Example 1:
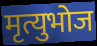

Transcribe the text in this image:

मृत्युभोज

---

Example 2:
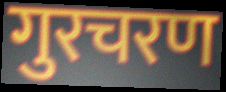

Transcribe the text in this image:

गुरचरण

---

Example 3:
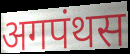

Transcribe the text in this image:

अगपंथस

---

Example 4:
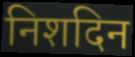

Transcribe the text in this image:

निशदिन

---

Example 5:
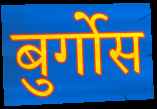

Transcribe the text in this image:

बुर्गोस